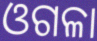
ଓଗଳା